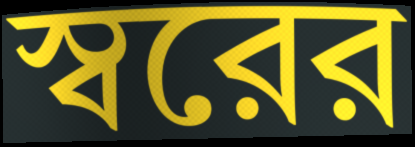
স্বরের